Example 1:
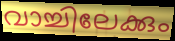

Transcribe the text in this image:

വാച്ചിലേക്കും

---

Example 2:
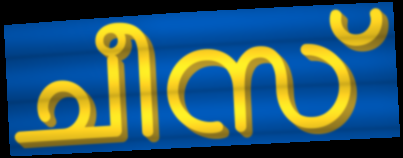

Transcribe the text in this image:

ചീസ്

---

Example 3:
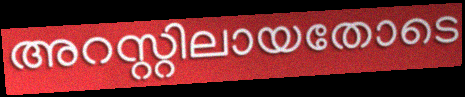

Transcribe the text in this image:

അറസ്റ്റിലായതോടെ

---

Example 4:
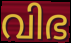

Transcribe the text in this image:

വിഭ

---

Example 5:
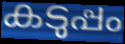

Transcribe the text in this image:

കടുപ്പം